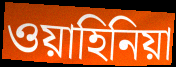
ওয়াহিনিয়া